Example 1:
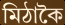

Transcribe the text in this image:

মিঠাকৈ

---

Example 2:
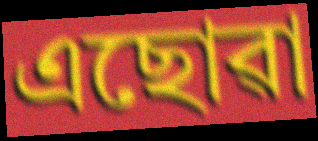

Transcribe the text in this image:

এছোৱা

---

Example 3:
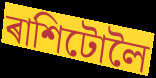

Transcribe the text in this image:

ৰাশিটোলৈ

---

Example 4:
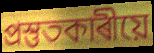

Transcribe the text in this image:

প্ৰস্তুতকাৰীয়ে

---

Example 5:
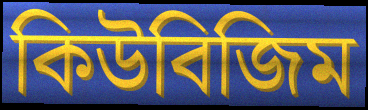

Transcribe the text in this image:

কিউবিজিম